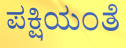
ಪಕ್ಷಿಯಂತೆ